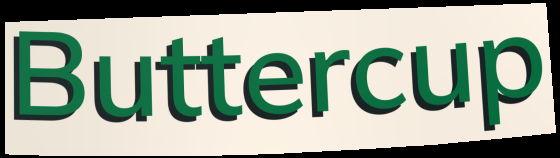
Buttercup